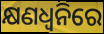
କ୍ଷଣଧ୍ୱନିରେ